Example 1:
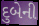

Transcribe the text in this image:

દુબેની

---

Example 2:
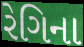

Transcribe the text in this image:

રેગિના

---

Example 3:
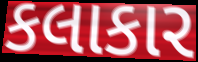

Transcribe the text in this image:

કલાકાર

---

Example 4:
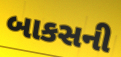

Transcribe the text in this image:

બાકસની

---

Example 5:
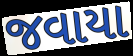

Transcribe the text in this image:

જવાયા